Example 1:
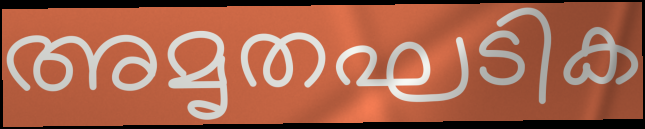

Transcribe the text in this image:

അമൃതഘടിക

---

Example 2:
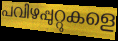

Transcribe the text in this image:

പവിഴപ്പുറ്റുകളെ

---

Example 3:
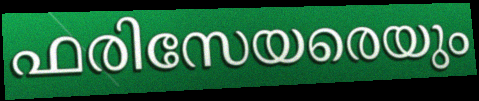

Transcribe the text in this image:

ഫരിസേയരെയും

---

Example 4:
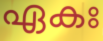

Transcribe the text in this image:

ഏകഃ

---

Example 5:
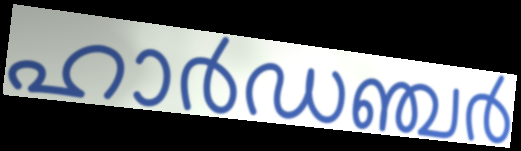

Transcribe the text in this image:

ഹാർഡഞ്ചർ